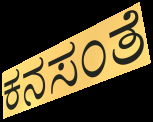
ಕನಸಂತೆ